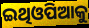
ଇଥିଓପିଆକୁ